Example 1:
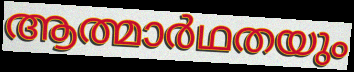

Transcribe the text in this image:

ആത്മാർഥതയും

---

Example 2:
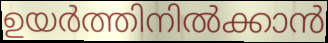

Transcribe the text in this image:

ഉയർത്തിനിൽക്കാൻ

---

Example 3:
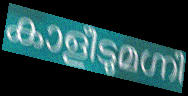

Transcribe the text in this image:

കാളീടുമഗ്നി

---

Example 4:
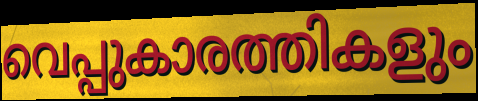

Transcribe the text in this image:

വെപ്പുകാരത്തികളും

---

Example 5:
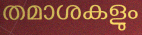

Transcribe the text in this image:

തമാശകളും